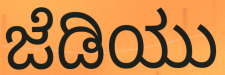
ಜೆಡಿಯು